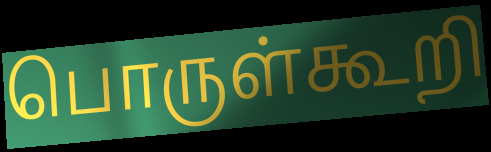
பொருள்கூறி